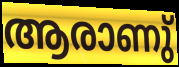
ആരാണു്